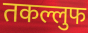
तकल्लुफ